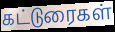
கட்டுரைகள்